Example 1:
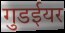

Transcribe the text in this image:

गुडईयर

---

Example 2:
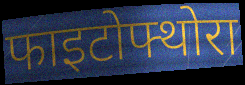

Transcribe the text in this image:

फाइटोफ्थोरा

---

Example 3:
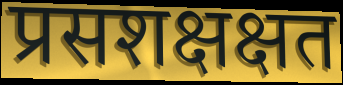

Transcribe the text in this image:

प्रसशक्षक्षत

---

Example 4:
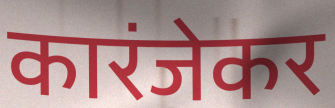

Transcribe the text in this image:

कारंजेकर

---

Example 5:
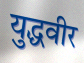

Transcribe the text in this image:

युद्धवीर